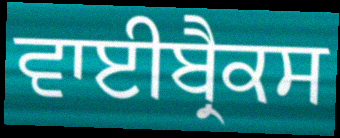
ਵਾਈਬ੍ਰੈਕਸ